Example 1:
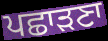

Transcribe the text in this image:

ਪਛਾੜਣਾ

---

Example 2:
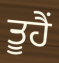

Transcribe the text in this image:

ਤੂਹੈਂ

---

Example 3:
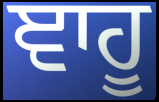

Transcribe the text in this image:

ਞਾਹੂ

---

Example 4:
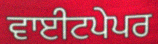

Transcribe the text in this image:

ਵਾਈਟਪੇਪਰ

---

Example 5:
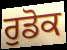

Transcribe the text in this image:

ਰੁਡੋਕ